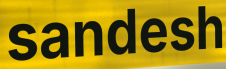
sandesh